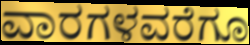
ವಾರಗಳವರೆಗೂ